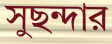
সুছন্দার